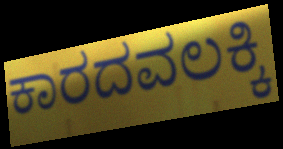
ಕಾರದವಲಕ್ಕಿ